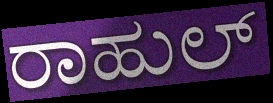
ರಾಹುಲ್